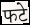
फटे